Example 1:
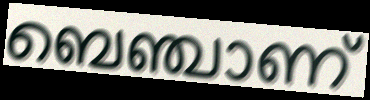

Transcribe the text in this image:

ബെഞ്ചാണ്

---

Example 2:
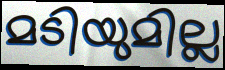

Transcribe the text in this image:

മടിയുമില്ല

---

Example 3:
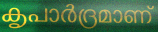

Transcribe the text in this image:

കൃപാർദ്രമാണ്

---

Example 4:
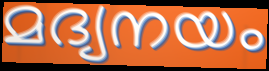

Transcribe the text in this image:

മദ്യനയം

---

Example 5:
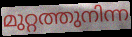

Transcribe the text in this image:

മുറ്റത്തുനിന്ന